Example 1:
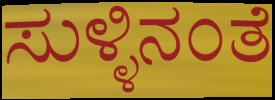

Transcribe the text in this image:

ಸುಳ್ಳಿನಂತೆ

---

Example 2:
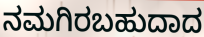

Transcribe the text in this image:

ನಮಗಿರಬಹುದಾದ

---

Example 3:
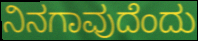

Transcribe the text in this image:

ನಿನಗಾವುದೆಂದು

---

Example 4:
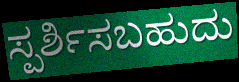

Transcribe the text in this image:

ಸ್ಪರ್ಶಿಸಬಹುದು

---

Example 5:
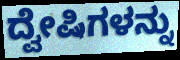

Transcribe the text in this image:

ದ್ವೇಷಿಗಳನ್ನು